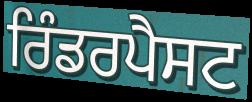
ਰਿੰਡਰਪੈਸਟ